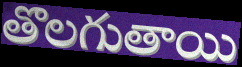
తొలగుతాయి